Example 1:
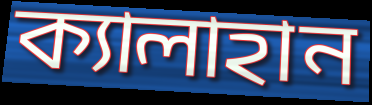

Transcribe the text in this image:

ক্যালাহান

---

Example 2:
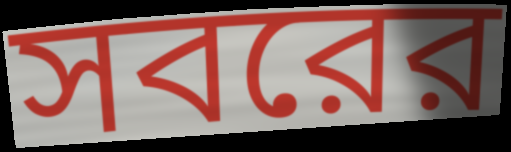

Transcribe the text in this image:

সবরের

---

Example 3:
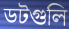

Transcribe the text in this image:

ডটগুলি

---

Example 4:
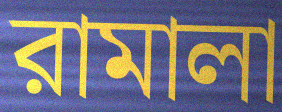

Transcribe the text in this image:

রামালা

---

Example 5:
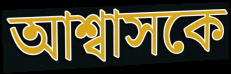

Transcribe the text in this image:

আশ্বাসকে